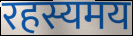
रहस्यमय